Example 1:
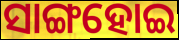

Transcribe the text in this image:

ସାଙ୍ଗହୋଇ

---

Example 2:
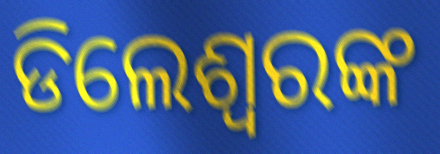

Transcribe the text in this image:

ଡିଲେଶ୍ଵରଙ୍କ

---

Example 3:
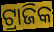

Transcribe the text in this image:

ଟ୍ରାଜିକ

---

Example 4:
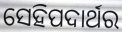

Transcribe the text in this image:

ସେହିପଦାର୍ଥର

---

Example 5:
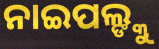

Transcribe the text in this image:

ନାଇପଲ୍ଙ୍କୁ